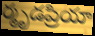
ర్మృడప్రియా